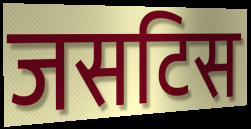
जसटिस